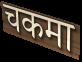
चकमा